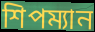
শিপম্যান